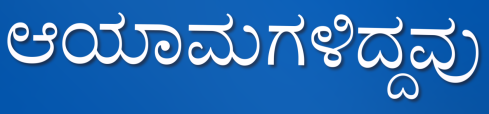
ಆಯಾಮಗಳಿದ್ದವು